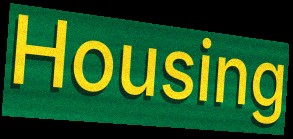
Housing